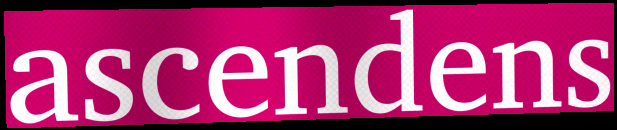
ascendens